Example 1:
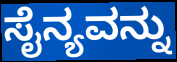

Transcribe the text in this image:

ಸೈನ್ಯವನ್ನು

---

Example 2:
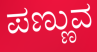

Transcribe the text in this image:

ಪಣ್ಣುವ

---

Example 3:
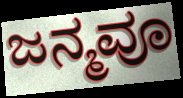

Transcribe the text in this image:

ಜನ್ಮವೂ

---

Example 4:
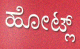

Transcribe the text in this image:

ಹೋಟ್ಲ್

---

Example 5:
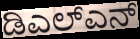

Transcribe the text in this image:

ಡಿಎಲ್ಎನ್